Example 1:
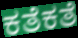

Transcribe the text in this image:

ಕತೆಕತೆ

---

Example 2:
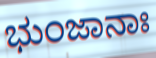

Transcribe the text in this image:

ಭುಂಜಾನಾಃ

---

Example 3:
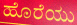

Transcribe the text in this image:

ಹೊರೆಯು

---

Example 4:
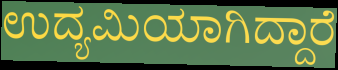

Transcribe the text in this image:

ಉದ್ಯಮಿಯಾಗಿದ್ದಾರೆ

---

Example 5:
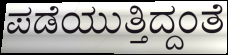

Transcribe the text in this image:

ಪಡೆಯುತ್ತಿದ್ದಂತೆ